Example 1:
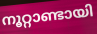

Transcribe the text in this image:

നൂറ്റാണ്ടായി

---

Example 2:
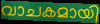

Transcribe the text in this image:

വാചകമായി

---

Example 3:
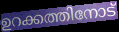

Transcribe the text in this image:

ഉറക്കത്തിനോട്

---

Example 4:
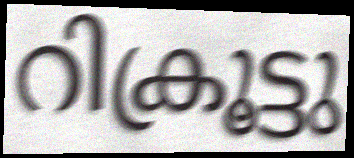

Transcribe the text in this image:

റിക്രൂട്ടു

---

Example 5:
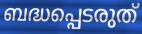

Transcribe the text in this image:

ബദ്ധപ്പെടരുത്